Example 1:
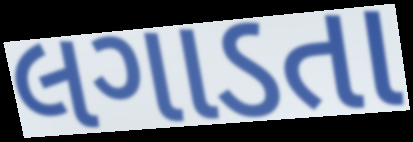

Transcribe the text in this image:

લગાડતા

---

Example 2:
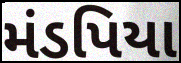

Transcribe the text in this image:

મંડપિયા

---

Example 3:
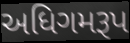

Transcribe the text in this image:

અધિગમરૂપ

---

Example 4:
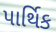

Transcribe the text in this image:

પાર્થિક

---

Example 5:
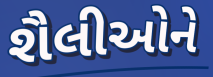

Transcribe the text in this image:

શૈલીઓને